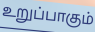
உறுப்பாகும்